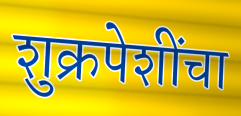
शुक्रपेशींचा